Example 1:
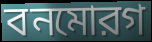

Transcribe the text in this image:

বনমোরগ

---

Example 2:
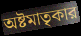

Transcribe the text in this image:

অষ্টমাতৃকার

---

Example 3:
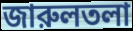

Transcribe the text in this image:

জারুলতলা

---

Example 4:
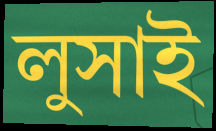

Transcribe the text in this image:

লুসাই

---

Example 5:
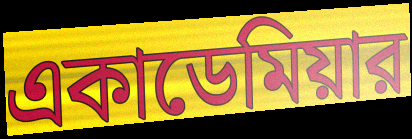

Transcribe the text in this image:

একাডেমিয়ার